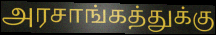
அரசாங்கத்துக்கு